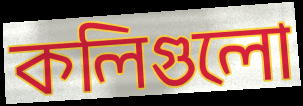
কলিগুলো